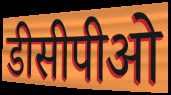
डीसीपीओ